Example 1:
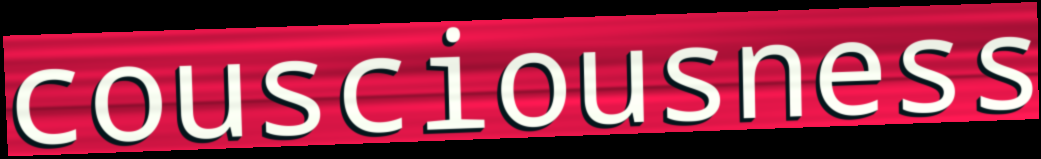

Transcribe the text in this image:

cousciousness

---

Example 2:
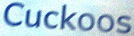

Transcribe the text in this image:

Cuckoos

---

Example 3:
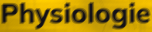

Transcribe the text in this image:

Physiologie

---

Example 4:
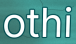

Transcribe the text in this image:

othi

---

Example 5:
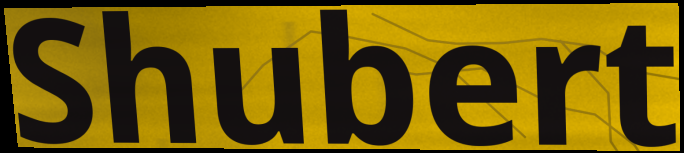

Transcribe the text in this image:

Shubert